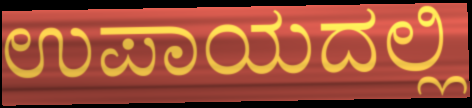
ಉಪಾಯದಲ್ಲಿ